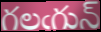
గలఁగున్